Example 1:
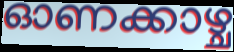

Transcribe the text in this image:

ഓണക്കാഴ്ച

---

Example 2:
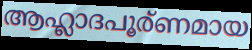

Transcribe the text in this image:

ആഹ്ലാദപൂര്ണമായ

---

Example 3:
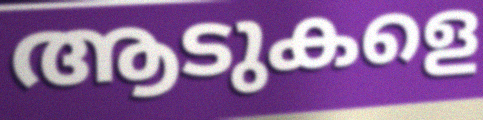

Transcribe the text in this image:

ആടുകളെ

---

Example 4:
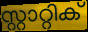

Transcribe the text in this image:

സ്റ്റാറ്റിക്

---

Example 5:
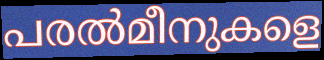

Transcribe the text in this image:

പരൽമീനുകളെ